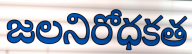
జలనిరోధకత